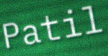
Patil